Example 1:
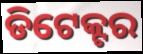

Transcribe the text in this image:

ଡିଟେକ୍ଟର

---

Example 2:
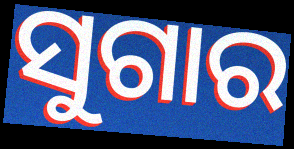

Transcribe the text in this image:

ସୁଗାର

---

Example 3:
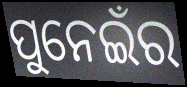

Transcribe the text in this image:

ପୁନେଇଁର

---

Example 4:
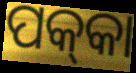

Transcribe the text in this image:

ପକ୍‌କା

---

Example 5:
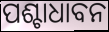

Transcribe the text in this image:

ପଶ୍ଚାଧାବନ